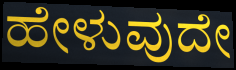
ಹೇಳುವುದೇ